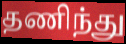
தணிந்து